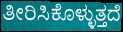
ತೀರಿಸಿಕೊಳ್ಳುತ್ತದೆ